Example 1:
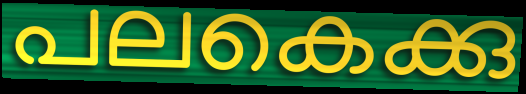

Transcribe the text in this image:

പലകെക്കു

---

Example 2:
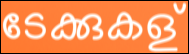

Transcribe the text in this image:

ടേക്കുകള്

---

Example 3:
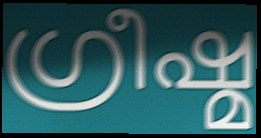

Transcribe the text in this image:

ഗ്രീഷ്മ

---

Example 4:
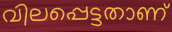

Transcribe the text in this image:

വിലപ്പെട്ടതാണ്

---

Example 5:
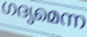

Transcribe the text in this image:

ഗദ്യമെന്ന